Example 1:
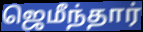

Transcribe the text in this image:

ஜெமீந்தார்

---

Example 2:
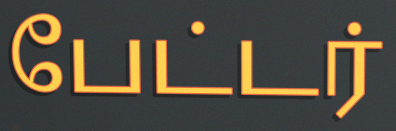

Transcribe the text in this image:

பேட்டர்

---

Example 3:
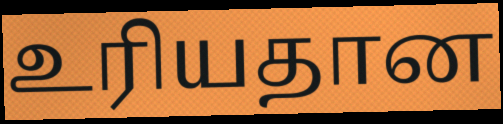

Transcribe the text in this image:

உரியதான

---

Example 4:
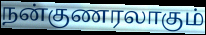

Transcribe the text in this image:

நன்குணரலாகும்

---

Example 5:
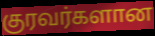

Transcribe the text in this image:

குரவர்களான